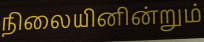
நிலையினின்றும்